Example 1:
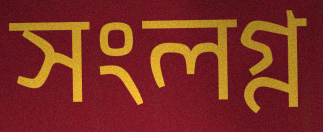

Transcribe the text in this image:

সংলগ্ন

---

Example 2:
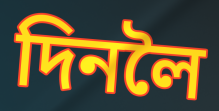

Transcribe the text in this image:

দিনলৈ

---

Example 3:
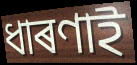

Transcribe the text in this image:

ধাৰণাই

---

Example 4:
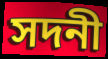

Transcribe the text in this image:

সদনী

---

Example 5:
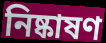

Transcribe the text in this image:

নিষ্কাষণ